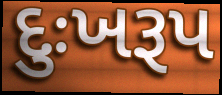
દુઃખરૂપ